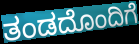
ತಂಡದೊಂದಿಗೆ